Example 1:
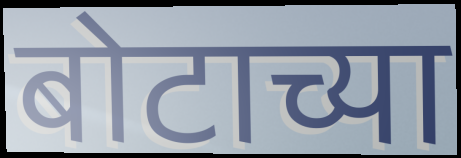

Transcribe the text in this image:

बोटाच्या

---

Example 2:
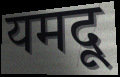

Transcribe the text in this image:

यमदू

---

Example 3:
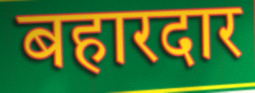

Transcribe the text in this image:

बहारदार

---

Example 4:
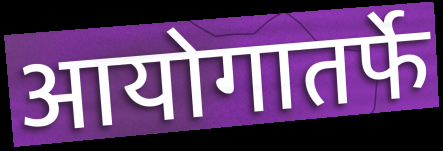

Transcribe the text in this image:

आयोगातर्फे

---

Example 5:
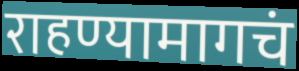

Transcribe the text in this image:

राहण्यामागचं